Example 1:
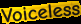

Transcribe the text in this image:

Voiceless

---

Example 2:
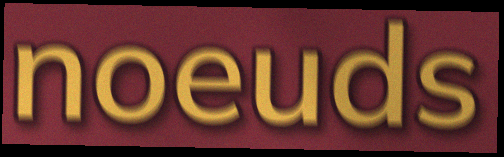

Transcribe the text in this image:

noeuds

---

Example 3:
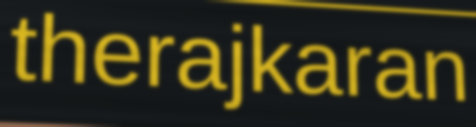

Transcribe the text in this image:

therajkaran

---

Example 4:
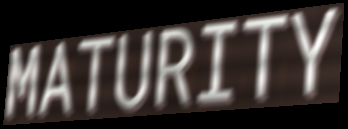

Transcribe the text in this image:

MATURITY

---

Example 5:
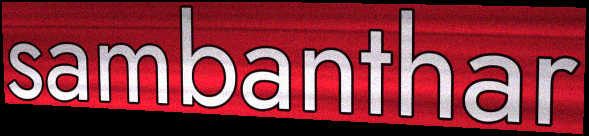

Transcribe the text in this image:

sambanthar